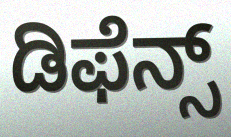
ಡಿಫೆನ್ಸ್